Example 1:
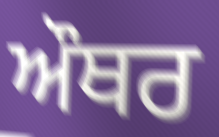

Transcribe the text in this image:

ਔਥਰ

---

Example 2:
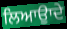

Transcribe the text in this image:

ਲਿਆਉਾਦੇ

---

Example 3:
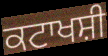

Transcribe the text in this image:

ਕਟਾਖਸ਼ੀ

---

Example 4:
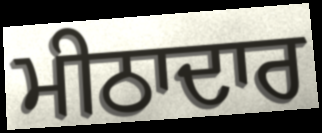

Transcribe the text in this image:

ਮੀਠਾਦਾਰ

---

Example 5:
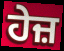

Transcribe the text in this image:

ਹੇਜ਼